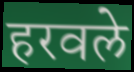
हरवले